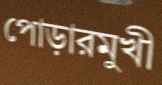
পোড়ারমুখী